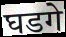
घडगे